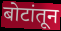
बोटांतून